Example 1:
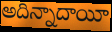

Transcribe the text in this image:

అదిన్నాదాయీ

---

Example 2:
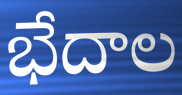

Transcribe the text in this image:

భేదాల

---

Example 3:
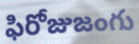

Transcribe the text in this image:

ఫిరోజుజంగు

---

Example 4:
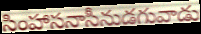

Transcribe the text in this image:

సింహాసనాసీనుడగువాడు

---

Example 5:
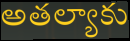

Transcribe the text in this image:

అతల్యాకు